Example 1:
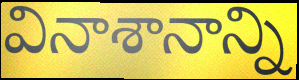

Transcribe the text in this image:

వినాశానాన్ని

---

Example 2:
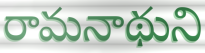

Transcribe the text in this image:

రామనాథుని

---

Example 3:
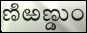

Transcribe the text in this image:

ణిఱణ్డుం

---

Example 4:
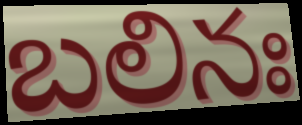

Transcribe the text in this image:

బలినః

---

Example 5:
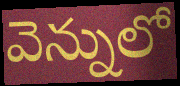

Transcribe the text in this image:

వెన్నులో